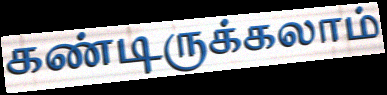
கண்டிருக்கலாம்